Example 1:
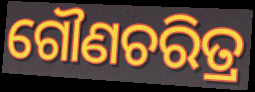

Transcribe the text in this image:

ଗୌଣଚରିତ୍ର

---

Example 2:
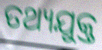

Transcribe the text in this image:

ତଥ୍ୟଯୁକ୍ତ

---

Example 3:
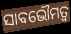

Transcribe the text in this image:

ସାବଭୌମତ୍ୱ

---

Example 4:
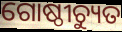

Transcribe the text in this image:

ଗୋଷ୍ଠୀଚ୍ୟୁତ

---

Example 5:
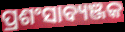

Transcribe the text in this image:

ପ୍ରଶଂସାବ୍ୟଞ୍ଜକ